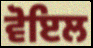
ਵੋਇਲ